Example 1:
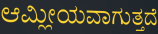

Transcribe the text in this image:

ಆಮ್ಲೀಯವಾಗುತ್ತದೆ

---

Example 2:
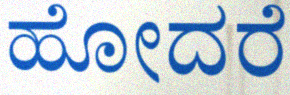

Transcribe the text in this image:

ಹೋದರೆ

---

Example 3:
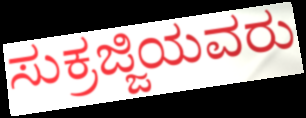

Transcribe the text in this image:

ಸುಕ್ರಜ್ಜಿಯವರು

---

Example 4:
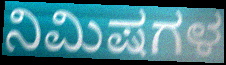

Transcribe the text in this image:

ನಿಮಿಷಗಳ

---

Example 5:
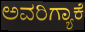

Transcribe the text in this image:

ಅವರಿಗ್ಯಾಕೆ